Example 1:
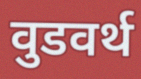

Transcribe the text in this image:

वुडवर्थ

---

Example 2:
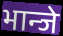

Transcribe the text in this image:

भान्जे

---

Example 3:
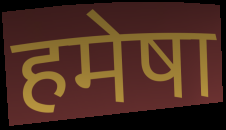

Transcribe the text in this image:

हमेषा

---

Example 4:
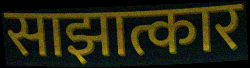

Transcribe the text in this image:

साझात्कार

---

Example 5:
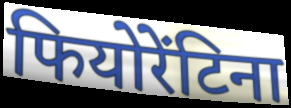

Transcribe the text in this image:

फियोरेंटिना